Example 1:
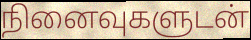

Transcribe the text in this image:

நினைவுகளுடன்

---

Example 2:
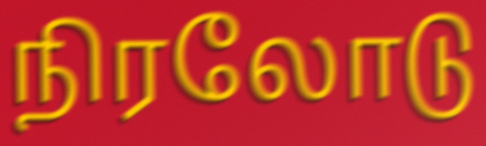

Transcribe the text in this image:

நிரலோடு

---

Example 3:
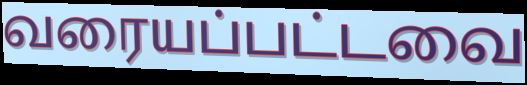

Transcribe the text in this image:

வரையப்பட்டவை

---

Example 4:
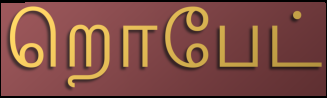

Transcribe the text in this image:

றொபேட்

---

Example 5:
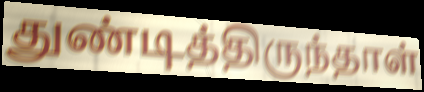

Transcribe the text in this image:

துண்டித்திருந்தாள்